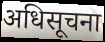
अधिसूचना